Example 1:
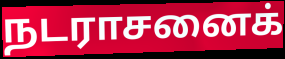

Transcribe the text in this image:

நடராசனைக்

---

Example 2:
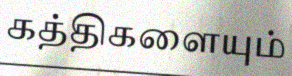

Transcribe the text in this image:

கத்திகளையும்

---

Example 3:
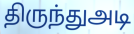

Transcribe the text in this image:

திருந்துஅடி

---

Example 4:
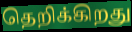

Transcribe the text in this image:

தெறிக்கிறது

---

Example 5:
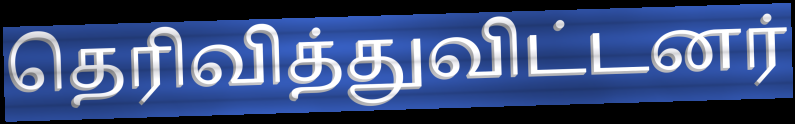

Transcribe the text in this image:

தெரிவித்துவிட்டனர்